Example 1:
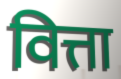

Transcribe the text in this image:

वित्ता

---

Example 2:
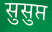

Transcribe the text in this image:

सुसुप्त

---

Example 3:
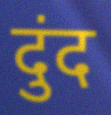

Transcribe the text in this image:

दुंद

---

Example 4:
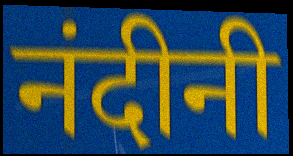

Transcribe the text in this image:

नंदीनी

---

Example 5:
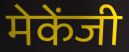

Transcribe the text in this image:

मेकेंजी